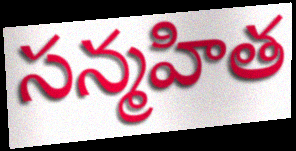
సన్మహిత